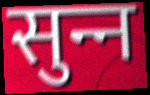
सुन्‍न